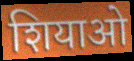
शियाओ